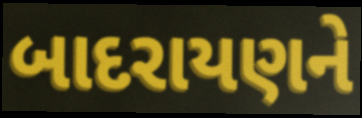
બાદરાયણને